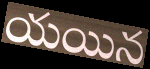
యయిన